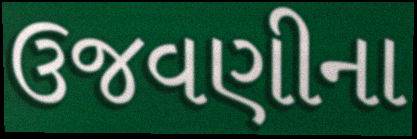
ઉજવણીના